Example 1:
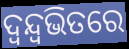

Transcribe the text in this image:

ଦ୍ୱନ୍ଦ୍ୱଭିତରେ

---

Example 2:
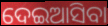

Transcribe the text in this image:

ଦେଇଆସିବା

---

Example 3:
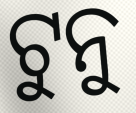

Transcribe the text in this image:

ଟୁନୁ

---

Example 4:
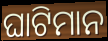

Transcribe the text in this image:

ଘାଟିମାନ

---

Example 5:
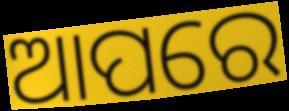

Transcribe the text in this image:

ଆପରେ